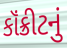
કૉંક્રીટનું